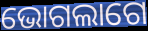
ଭୋଗଲାଗେ